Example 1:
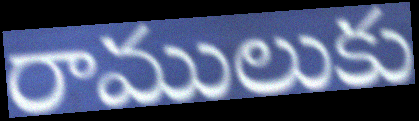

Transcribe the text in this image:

రాములుకు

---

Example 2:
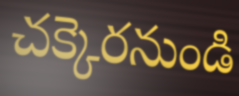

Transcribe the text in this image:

చక్కెరనుండి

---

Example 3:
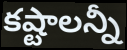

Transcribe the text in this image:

కష్టాలన్నీ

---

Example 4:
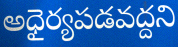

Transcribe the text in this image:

అధైర్యపడవద్దని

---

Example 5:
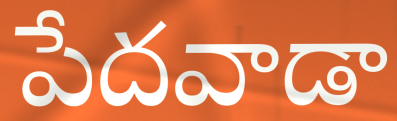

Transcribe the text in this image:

పేదవాడా